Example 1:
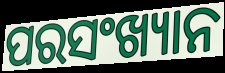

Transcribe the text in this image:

ପରସଂଖ୍ୟାନ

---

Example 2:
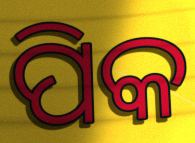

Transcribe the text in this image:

ପିକ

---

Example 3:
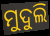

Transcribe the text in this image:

ମୁଦୁଲି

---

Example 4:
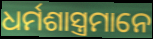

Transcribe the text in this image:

ଧର୍ମଶାସ୍ତ୍ରମାନେ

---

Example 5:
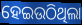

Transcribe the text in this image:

ହେଇଉଠିଥିଲା